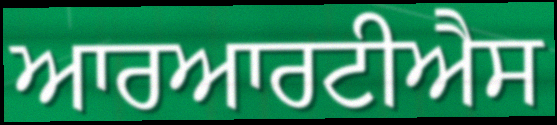
ਆਰਆਰਟੀਐਸ